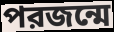
পরজন্মে